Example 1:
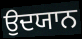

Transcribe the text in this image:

ਉਦਯਾਨ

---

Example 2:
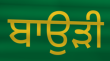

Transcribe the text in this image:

ਬਾਉੜੀ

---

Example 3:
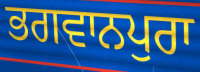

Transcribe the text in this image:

ਭਗਵਾਨਪੁਰਾ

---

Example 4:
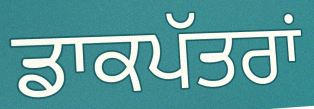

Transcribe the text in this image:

ਡਾਕਪੱਤਰਾਂ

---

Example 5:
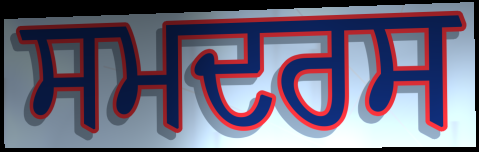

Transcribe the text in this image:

ਸਮਦਰਸ